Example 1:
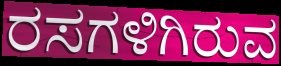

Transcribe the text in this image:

ರಸಗಳಿಗಿರುವ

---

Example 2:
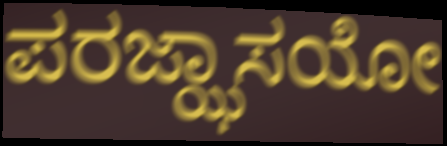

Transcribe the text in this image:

ಪರಜ್ಝಾಸಯೋ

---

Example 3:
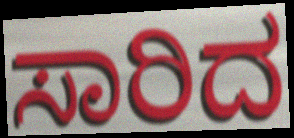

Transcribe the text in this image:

ಸಾರಿದ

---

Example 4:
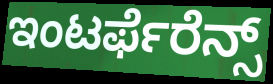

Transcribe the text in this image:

ಇಂಟರ್ಫೆರೆನ್ಸ್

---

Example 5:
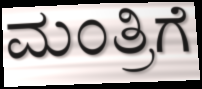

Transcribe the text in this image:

ಮಂತ್ರಿಗೆ